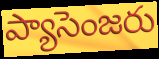
ప్యాసెంజరు